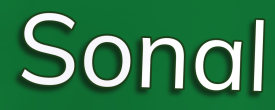
Sonal